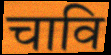
चावि